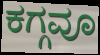
ಕಗ್ಗವೂ